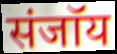
संजॉय